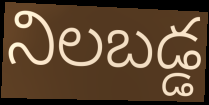
నిలబడ్డ